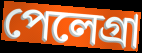
পেলেগ্রা